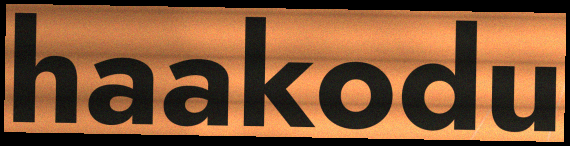
haakodu